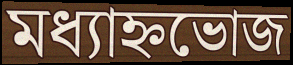
মধ্যাহ্নভোজ